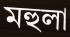
মহুলা